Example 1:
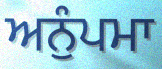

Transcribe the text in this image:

ਅਨੁੰਪਮਾ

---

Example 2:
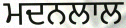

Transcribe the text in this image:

ਮਦਨਲਾਲ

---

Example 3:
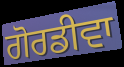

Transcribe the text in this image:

ਗੋਰਡੀਵਾ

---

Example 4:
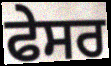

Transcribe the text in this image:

ਫੇਸਰ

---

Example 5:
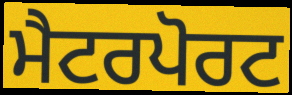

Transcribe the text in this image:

ਮੈਟਰਪੋਰਟ